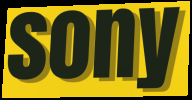
sony